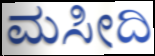
ಮಸೀದಿ